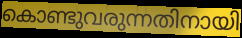
കൊണ്ടുവരുന്നതിനായി